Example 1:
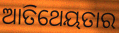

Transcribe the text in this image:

ଆତିଥେୟତାର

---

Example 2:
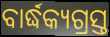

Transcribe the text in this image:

ବାର୍ଦ୍ଧକ୍ୟଗ୍ରସ୍ତ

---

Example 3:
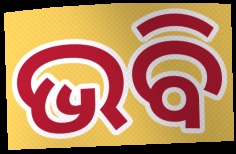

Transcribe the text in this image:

ଭବି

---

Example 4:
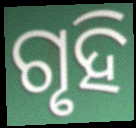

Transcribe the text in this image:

ଗୃହି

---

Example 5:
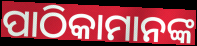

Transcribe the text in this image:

ପାଠିକାମାନଙ୍କ